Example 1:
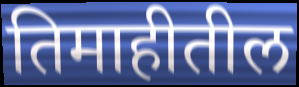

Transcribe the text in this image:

तिमाहीतील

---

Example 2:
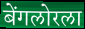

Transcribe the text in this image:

बेंगलोरला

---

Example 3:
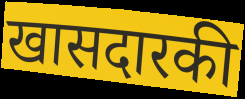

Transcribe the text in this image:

खासदारकी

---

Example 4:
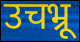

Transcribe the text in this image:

उचभ्रू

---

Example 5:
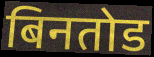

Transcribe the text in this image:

बिनतोड